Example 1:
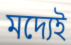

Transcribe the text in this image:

মদ্যেই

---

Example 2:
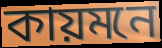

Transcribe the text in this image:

কায়মনে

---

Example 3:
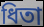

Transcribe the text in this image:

ধিতা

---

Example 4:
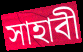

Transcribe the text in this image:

সাহাবী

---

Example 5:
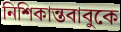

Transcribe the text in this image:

নিশিকান্তবাবুকে